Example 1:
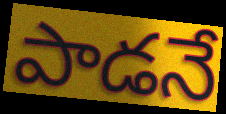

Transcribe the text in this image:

పాడనే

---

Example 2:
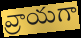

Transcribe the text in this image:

వ్రాయగా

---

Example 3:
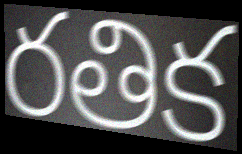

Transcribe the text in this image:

రతిక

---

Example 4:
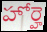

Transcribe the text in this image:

హోర్హె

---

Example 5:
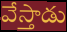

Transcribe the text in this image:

వేస్తాడు